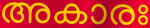
അകാരഃ